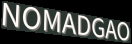
NOMADGAO